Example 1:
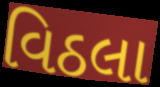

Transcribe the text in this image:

વિઠલા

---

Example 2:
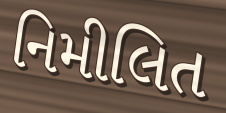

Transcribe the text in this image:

નિમીલિત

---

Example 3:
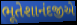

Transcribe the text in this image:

ભૂતેશાનંદજીએ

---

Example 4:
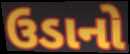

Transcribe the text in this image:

ઉડાનો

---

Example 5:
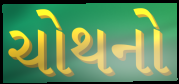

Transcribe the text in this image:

ચોથનો